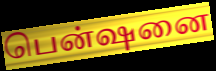
பென்ஷனை